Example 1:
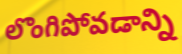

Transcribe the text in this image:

లొంగిపోవడాన్ని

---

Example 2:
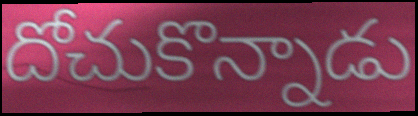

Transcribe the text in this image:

దోచుకొన్నాడు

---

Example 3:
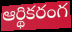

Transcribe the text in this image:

ఆర్థికరంగ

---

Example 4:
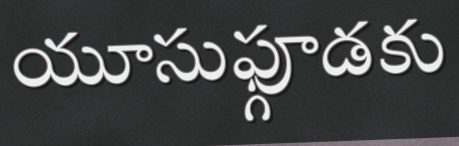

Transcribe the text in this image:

యూసుఫ్గూడకు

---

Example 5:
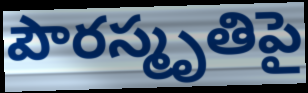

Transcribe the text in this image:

పౌరస్మృతిపై